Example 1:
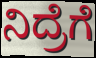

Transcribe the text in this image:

ನಿದ್ರೆಗೆ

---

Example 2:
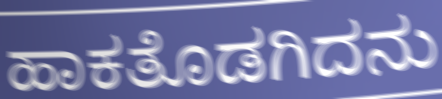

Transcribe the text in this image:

ಹಾಕತೊಡಗಿದನು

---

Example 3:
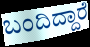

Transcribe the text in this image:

ಬಂದಿದ್ದಾರೆ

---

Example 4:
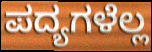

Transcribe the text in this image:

ಪದ್ಯಗಳೆಲ್ಲ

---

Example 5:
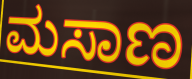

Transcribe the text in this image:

ಮಸಾಣ